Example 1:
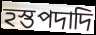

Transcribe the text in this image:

হস্তপদাদি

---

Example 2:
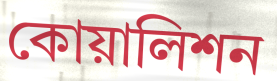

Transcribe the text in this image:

কোয়ালিশন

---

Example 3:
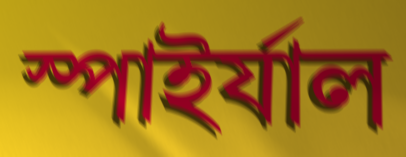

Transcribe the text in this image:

স্পাইর্যাল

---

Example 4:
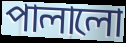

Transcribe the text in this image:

পালালো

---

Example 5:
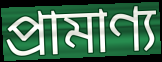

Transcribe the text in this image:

প্রামাণ্য